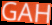
GAH